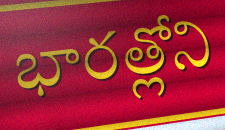
భారత్లోని